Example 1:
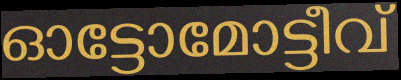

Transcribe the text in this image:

ഓട്ടോമോട്ടീവ്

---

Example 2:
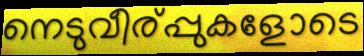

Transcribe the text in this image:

നെടുവീര്പ്പുകളോടെ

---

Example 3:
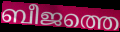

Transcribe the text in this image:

ബീജത്തെ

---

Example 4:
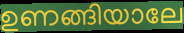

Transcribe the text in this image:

ഉണങ്ങിയാലേ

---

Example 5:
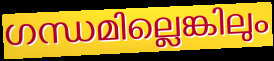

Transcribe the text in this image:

ഗന്ധമില്ലെങ്കിലും